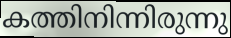
കത്തിനിന്നിരുന്നു